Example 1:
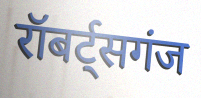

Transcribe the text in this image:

रॉबर्ट्सगंज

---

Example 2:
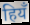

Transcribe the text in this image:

हियँ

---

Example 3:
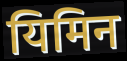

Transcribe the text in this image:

यिमिन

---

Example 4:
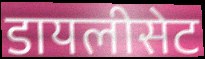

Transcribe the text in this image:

डायलीसेट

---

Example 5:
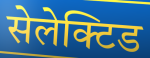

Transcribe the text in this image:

सेलेक्टिड